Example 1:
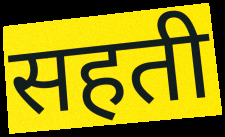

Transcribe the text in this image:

सहती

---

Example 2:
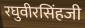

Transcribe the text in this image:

रघुवीरसिंहजी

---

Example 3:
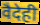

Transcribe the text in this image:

वैदेही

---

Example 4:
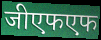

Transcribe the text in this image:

जीएफएफ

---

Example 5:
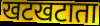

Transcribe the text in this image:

खटखटाता